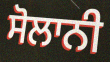
ਸੋਲਾਨੀ